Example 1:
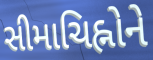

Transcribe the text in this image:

સીમાચિહ્નોને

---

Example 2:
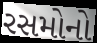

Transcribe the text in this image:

રસમોનો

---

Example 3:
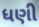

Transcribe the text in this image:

ધણી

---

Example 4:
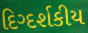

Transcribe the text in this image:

દિગ્દર્શકીય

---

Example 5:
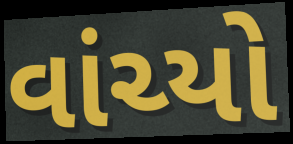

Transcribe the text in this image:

વાંચ્યો